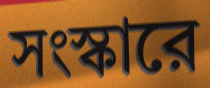
সংস্কারে